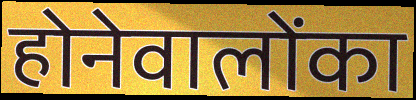
होनेवालोंका